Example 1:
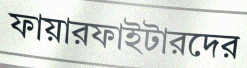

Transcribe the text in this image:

ফায়ারফাইটারদের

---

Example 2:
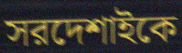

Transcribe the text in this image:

সরদেশাইকে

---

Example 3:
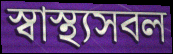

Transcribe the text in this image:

স্বাস্থ্যসবল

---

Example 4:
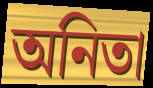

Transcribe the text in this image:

অনিতা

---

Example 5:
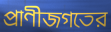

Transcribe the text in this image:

প্রাণীজগতের